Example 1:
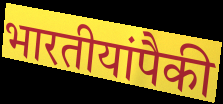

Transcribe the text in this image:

भारतीयांपैकी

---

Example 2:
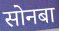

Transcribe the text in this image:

सोनबा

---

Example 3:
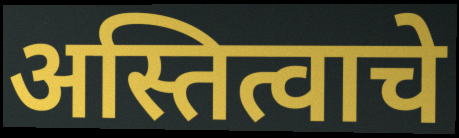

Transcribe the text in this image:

अस्तित्वाचे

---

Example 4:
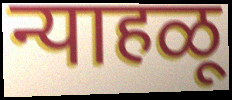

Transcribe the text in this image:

न्याहळू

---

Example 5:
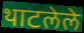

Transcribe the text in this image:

थाटलेले